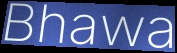
Bhawa